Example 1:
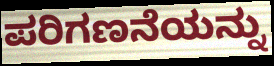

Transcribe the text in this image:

ಪರಿಗಣನೆಯನ್ನು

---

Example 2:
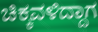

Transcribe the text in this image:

ಚಿಕ್ಕವಳಿದ್ದಾಗ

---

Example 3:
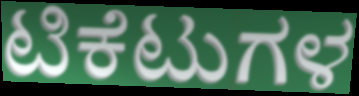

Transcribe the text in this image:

ಟಿಕೆಟುಗಳ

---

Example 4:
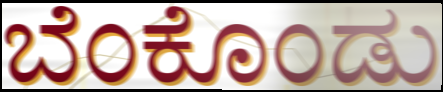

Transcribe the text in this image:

ಬೆಂಕೊಂಡು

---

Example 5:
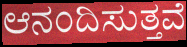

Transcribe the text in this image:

ಆನಂದಿಸುತ್ತವೆ